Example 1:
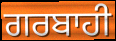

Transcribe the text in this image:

ਗਰਬਾਹੀ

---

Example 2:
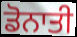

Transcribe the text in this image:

ਡੋਨਾਤੀ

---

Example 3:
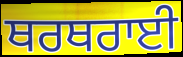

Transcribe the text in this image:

ਥਰਥਰਾਈ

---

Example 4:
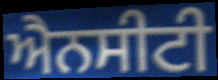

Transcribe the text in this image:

ਐਨਸੀਟੀ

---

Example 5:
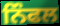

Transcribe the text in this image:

ਨਿੰਫਲ